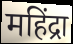
महिंद्रा